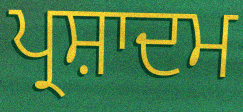
ਪ੍ਰਸ਼ਾਦਮ